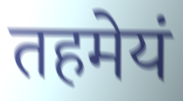
तहमेयं